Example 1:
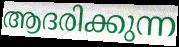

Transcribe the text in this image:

ആദരിക്കുന്ന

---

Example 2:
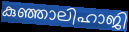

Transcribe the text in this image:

കുഞ്ഞാലിഹാജി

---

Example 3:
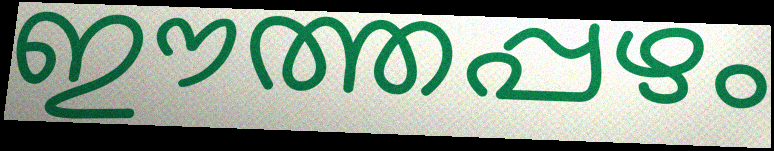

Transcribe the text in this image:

ഈത്തപ്പഴം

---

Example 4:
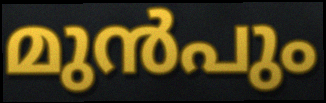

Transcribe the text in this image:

മുൻപും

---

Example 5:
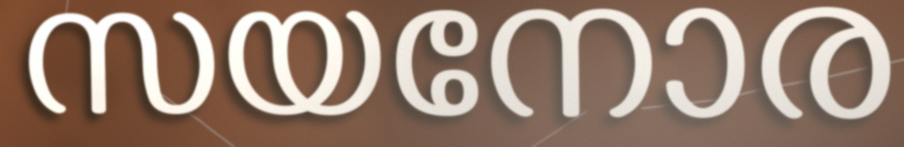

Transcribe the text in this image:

സയനോര